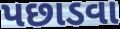
પછાડવા